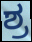
ಶ್ರ